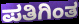
ಪತಿಗಿಂತ